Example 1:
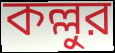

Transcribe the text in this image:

কল্লুর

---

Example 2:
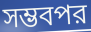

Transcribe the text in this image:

সম্ভবপর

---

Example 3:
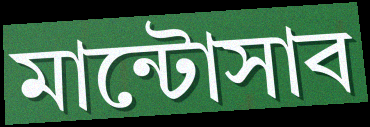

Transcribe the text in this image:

মান্টোসাব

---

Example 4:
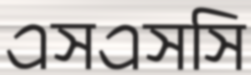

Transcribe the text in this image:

এসএসসি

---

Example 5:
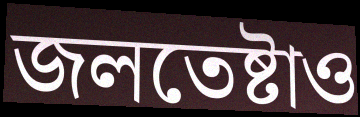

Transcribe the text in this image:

জলতেষ্টাও